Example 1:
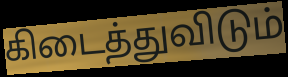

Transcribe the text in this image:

கிடைத்துவிடும்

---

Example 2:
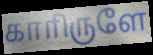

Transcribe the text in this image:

காரிருளே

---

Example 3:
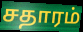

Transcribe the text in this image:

சதாரம்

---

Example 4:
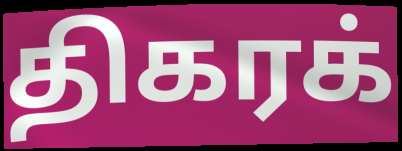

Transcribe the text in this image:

திகரக்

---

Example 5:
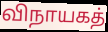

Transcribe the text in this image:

விநாயகத்